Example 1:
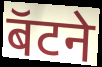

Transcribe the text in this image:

बॅटने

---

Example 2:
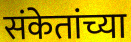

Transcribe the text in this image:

संकेतांच्या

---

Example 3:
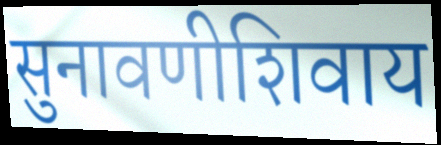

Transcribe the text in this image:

सुनावणीशिवाय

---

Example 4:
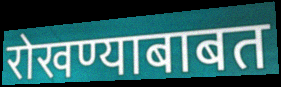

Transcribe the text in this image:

रोखण्याबाबत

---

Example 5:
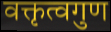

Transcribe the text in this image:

वक्तृत्वगुण